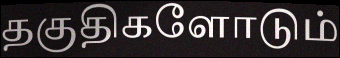
தகுதிகளோடும்